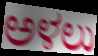
ಅಳಲು